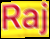
Raj